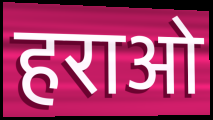
हराओ